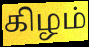
கிழம்